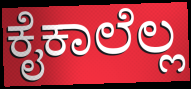
ಕೈಕಾಲೆಲ್ಲ